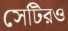
সেটিরও